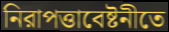
নিরাপত্তাবেষ্টনীতে